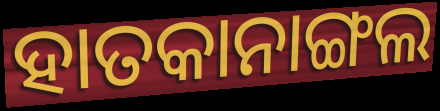
ହାତକାନାଙ୍ଗଲ